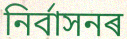
নিৰ্বাসনৰ